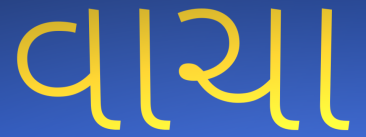
વાચા